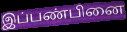
இப்பண்பினை